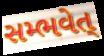
સમ્ભવેત્